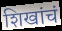
शिखांचं